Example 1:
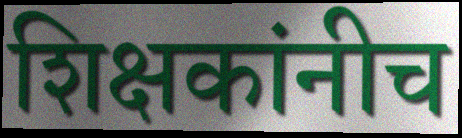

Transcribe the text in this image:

शिक्षकांनीच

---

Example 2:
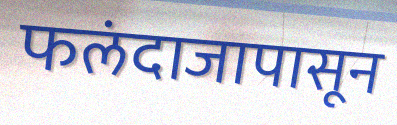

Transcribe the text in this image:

फलंदाजापासून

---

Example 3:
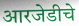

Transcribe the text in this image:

आरजेडीचे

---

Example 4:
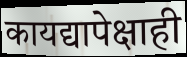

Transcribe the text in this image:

कायद्यापेक्षाही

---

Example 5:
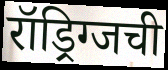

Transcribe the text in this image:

रॉड्रिग्जची